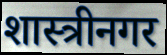
शास्त्रीनगर